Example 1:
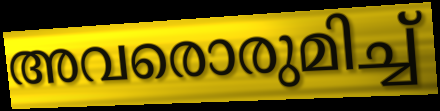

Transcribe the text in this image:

അവരൊരുമിച്ച്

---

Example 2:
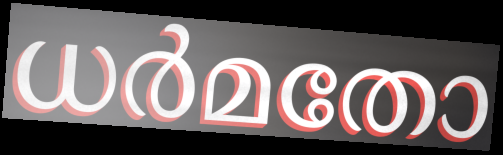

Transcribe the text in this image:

ധർമതോ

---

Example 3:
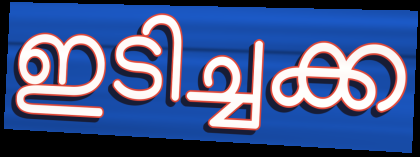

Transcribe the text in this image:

ഇടിച്ചക്ക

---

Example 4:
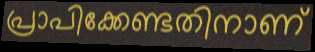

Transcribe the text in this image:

പ്രാപിക്കേണ്ടതിനാണ്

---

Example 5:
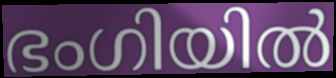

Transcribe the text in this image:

ഭംഗിയിൽ